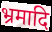
भ्रमादि